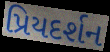
પ્રિયદર્શન